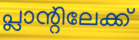
പ്ലാന്റിലേക്ക്